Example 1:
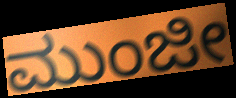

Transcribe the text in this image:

ಮುಂಜೀ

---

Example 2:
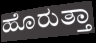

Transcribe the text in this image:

ಹೊರುತ್ತಾ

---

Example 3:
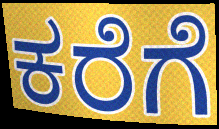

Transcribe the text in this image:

ಕರೆಗೆ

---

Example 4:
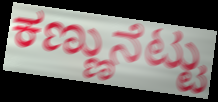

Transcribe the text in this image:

ಕಣ್ಣುನೆಟ್ಟು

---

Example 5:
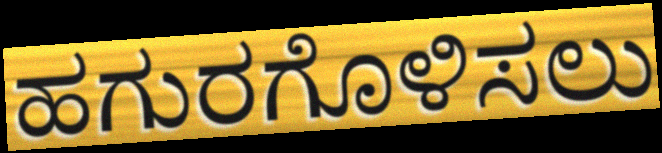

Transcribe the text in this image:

ಹಗುರಗೊಳಿಸಲು